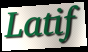
Latif